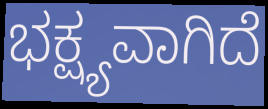
ಭಕ್ಷ್ಯವಾಗಿದೆ